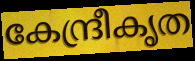
കേന്ദ്രീകൃത